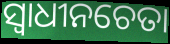
ସ୍ବାଧୀନଚେତା